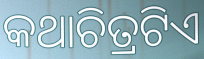
କଥାଚିତ୍ରଟିଏ